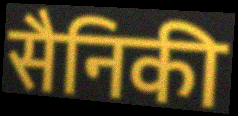
सैनिकी